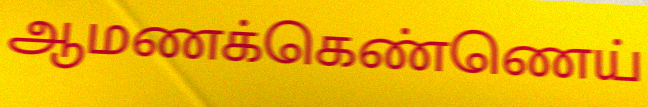
ஆமணக்கெண்ணெய்